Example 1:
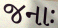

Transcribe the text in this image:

જનાઃ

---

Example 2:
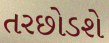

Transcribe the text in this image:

તરછોડશે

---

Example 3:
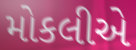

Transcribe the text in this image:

મોકલીએ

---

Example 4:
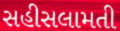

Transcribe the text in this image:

સહીસલામતી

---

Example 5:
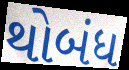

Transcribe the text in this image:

થોબંધ